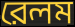
রেলম